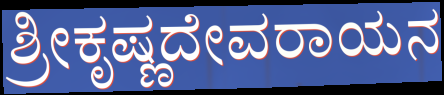
ಶ್ರೀಕೃಷ್ಣದೇವರಾಯನ